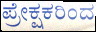
ಪ್ರೇಕ್ಷಕರಿಂದ